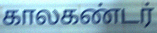
காலகண்டர்